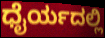
ಧೈರ್ಯದಲ್ಲಿ